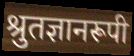
श्रुतज्ञानरूपी